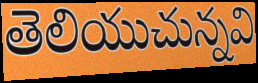
తెలియుచున్నవి